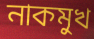
নাকমুখ